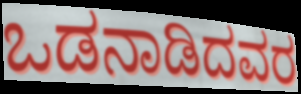
ಒಡನಾಡಿದವರ